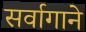
सर्वागाने